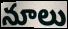
నూలు